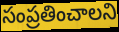
సంప్రతించాలని